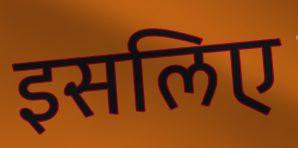
इसलिए